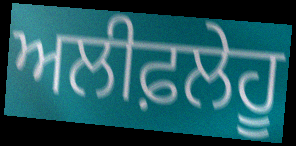
ਅਲੀਫ਼ਲੇਹੂ